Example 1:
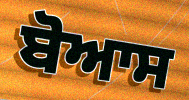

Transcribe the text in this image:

ਬੋਆਸ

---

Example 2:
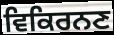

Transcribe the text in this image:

ਵਿਕਿਰਨਣ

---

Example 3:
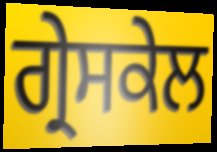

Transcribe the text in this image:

ਗ੍ਰੇਸਕੇਲ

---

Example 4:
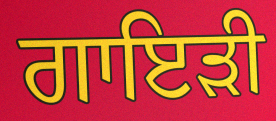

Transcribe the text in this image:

ਗਾਇੜੀ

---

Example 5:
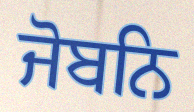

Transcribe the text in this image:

ਜੋਬਨਿ